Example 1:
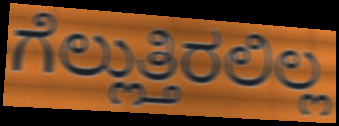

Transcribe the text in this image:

ಗೆಲ್ಲುತ್ತಿರಲಿಲ್ಲ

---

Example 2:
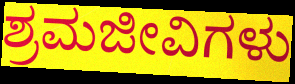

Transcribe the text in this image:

ಶ್ರಮಜೀವಿಗಳು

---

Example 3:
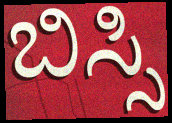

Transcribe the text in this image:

ಬಿಸ್ಸಿ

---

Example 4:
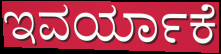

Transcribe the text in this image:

ಇವರ್ಯಾಕೆ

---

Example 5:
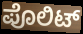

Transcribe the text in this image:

ಪೊಲಿಟ್